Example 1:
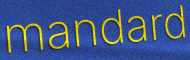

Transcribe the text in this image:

mandard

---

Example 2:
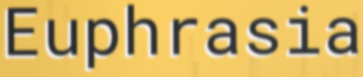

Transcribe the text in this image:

Euphrasia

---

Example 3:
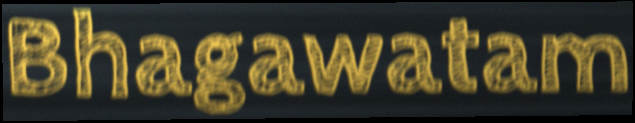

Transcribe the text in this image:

Bhagawatam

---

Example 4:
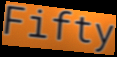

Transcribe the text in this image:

Fifty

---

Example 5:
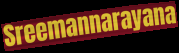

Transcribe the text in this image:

Sreemannarayana